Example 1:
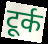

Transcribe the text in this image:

टूर्क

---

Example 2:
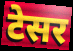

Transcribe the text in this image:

टेसर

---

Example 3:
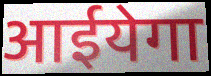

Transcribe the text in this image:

आईयेगा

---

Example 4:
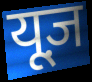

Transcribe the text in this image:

यूज़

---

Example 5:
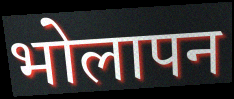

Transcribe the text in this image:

भोलापन